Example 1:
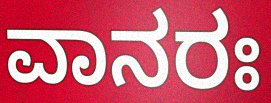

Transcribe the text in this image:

ವಾನರಃ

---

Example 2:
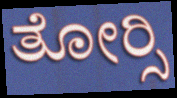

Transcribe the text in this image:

ತೋರ್‍ಸಿ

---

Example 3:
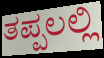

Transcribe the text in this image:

ತಪ್ಪಲಲ್ಲಿ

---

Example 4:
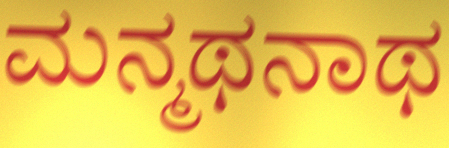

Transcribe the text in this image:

ಮನ್ಮಥನಾಥ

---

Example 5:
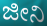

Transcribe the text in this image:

ಜೀನಿ